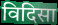
विदिसा